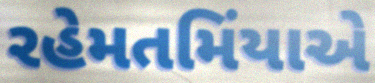
રહેમતમિંયાએ